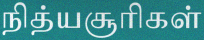
நித்யசூரிகள்